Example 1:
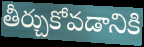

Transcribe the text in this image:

తీర్చుకోవడానికి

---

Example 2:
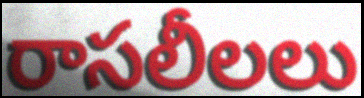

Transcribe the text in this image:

రాసలీలలు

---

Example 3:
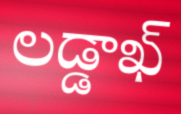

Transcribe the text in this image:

లడ్డాఖ్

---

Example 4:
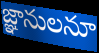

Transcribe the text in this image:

జ్ఞానులనూ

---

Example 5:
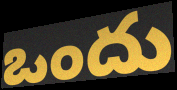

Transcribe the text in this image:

ఒందు